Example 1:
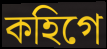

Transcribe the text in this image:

কহিগে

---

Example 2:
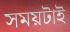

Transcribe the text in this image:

সময়টাই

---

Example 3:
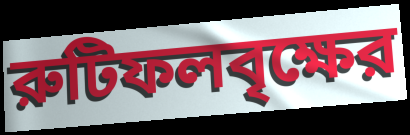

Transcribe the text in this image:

রুটিফলবৃক্ষের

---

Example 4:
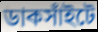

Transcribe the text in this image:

ডাকসাঁইটে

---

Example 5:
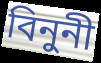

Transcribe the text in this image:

বিনুনী